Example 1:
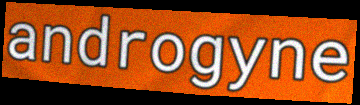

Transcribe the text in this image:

androgyne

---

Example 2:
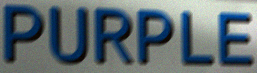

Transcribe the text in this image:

PURPLE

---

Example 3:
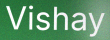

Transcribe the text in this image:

Vishay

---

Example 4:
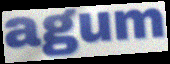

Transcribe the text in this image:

agum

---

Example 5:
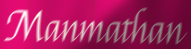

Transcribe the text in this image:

Manmathan